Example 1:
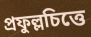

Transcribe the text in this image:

প্রফুল্লচিত্তে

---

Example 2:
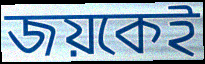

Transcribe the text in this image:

জয়কেই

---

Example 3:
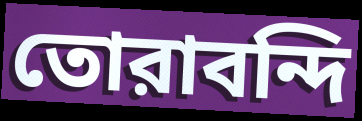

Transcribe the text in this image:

তোরাবন্দি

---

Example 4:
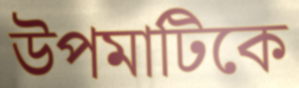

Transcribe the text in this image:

উপমাটিকে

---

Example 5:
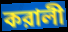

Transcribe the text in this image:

করালী